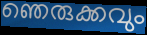
ഞെരുക്കവും